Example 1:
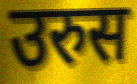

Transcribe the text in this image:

उरुस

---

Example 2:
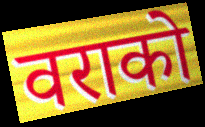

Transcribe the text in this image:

वराको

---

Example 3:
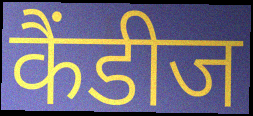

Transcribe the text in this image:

कैंडीज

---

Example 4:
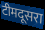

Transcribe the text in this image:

टीमदूसरा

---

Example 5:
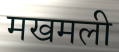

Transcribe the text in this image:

मखमली